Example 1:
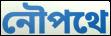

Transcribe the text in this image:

নৌপথে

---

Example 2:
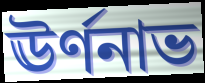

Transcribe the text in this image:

ঊর্ণনাভ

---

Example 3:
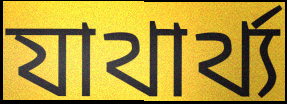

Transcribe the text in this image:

যাথার্থ্য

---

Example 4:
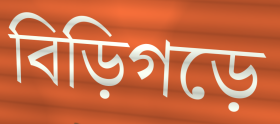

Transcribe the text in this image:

বিড়িগড়ে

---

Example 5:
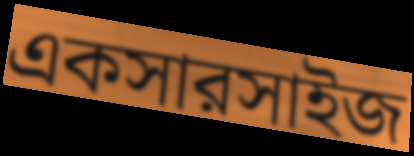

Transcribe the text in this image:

একসারসাইজ